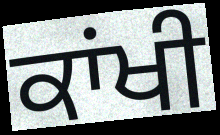
ਕਾਂਖੀ